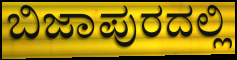
ಬಿಜಾಪುರದಲ್ಲಿ